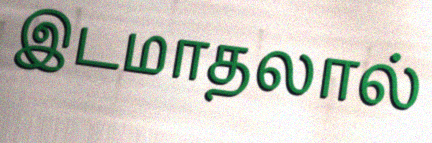
இடமாதலால்